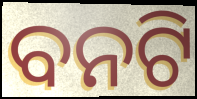
ବନଟି